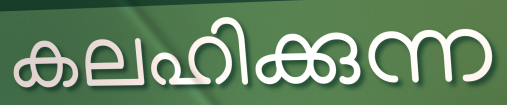
കലഹിക്കുന്ന